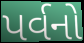
પર્વનો